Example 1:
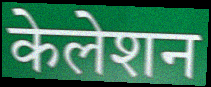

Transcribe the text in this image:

केलेशन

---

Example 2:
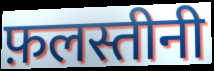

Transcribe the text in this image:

फ़लस्तीनी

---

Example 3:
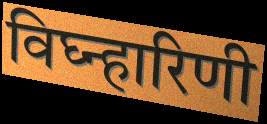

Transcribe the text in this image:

विघ्न्हारिणी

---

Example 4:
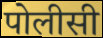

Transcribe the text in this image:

पोलीसी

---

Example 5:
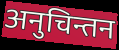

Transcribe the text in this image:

अनुचिन्तन